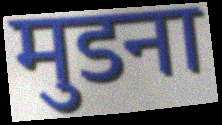
मुडना